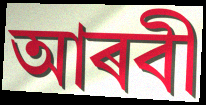
আৰবী